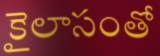
కైలాసంతో